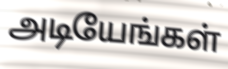
அடியேங்கள்